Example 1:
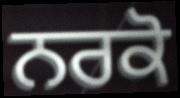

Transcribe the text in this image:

ਨਰਕੋ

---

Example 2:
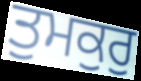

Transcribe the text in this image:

ਤੁਮਕੁਰੁ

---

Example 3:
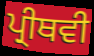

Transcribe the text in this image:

ਪ੍ਰੀਥਵੀ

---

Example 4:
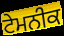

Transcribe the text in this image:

ਟੇਮਨੀਕ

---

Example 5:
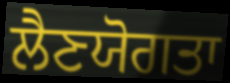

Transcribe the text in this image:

ਲੈਣਯੋਗਤਾ